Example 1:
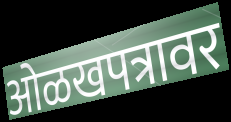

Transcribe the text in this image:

ओळखपत्रावर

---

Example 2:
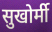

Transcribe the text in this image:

सुखोर्मी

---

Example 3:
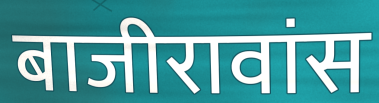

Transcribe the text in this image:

बाजीरावांस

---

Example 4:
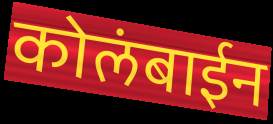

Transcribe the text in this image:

कोलंबाईन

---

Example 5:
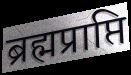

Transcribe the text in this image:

ब्रह्मप्राप्ति